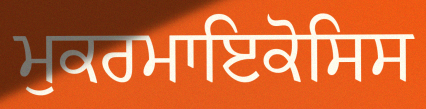
ਮੁਕਰਮਾਇਕੋਸਿਸ